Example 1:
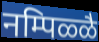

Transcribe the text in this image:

नम्पिळ्ळै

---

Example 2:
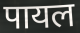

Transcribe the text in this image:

पायल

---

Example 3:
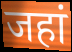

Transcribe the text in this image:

जहां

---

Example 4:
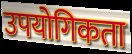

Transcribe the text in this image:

उपयोगिकता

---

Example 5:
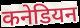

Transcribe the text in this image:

कनेडियन